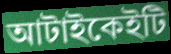
আটাইকেইটি